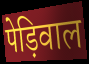
पेड़िवाल